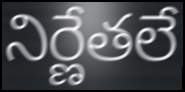
నిర్ణేతలే